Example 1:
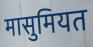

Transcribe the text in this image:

मासुमियत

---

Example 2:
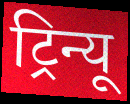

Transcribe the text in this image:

ट्रिन्यू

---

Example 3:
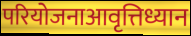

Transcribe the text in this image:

परियोजनाआवृत्तिध्यान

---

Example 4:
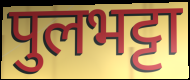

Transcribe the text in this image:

पुलभट्टा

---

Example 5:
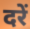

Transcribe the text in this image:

दरें